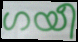
ഗയീ